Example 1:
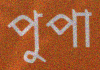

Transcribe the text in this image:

পুপা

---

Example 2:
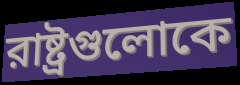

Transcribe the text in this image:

রাষ্ট্রগুলোকে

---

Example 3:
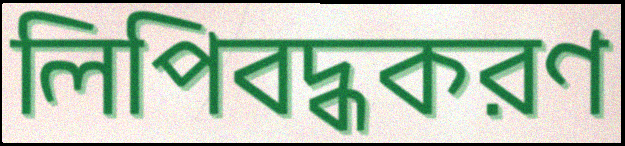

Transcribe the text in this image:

লিপিবদ্ধকরণ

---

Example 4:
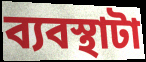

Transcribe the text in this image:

ব্যবস্থাটা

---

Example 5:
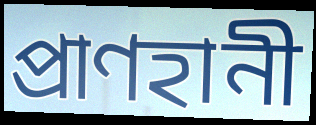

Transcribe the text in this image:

প্রাণহানী